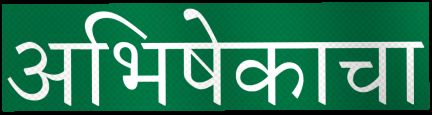
अभिषेकाचा